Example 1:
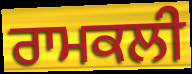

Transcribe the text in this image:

ਰਾਮਕਲੀ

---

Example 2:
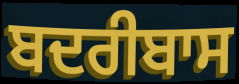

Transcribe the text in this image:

ਬਦਰੀਬਾਸ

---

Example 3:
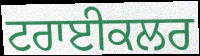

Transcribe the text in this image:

ਟਰਾਈਕਲਰ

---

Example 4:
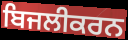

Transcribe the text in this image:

ਬਿਜਲੀਕਰਨ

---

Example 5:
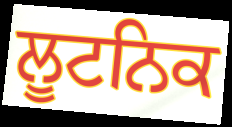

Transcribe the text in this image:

ਲੂਟਨਿਕ